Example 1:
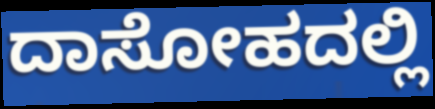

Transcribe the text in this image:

ದಾಸೋಹದಲ್ಲಿ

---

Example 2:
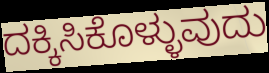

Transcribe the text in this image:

ದಕ್ಕಿಸಿಕೊಳ್ಳುವುದು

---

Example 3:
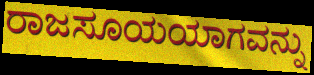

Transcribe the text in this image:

ರಾಜಸೂಯಯಾಗವನ್ನು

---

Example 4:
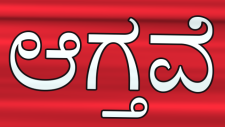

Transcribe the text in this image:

ಆಗ್ತವೆ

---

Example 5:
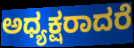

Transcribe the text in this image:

ಅಧ್ಯಕ್ಷರಾದರೆ